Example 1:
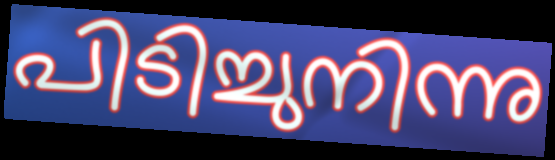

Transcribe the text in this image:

പിടിച്ചുനിന്നു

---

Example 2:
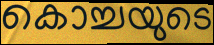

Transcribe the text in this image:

കൊച്ചയുടെ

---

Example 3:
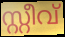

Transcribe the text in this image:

സ്റ്റീവ്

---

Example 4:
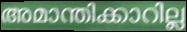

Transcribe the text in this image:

അമാന്തിക്കാറില്ല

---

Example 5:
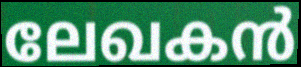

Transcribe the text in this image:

ലേഖകൻ